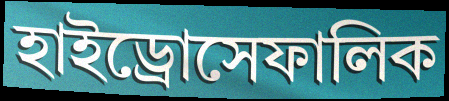
হাইড্রোসেফালিক